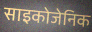
साइकोजेनिक